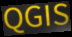
QGIS